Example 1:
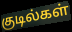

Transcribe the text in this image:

குடில்கள்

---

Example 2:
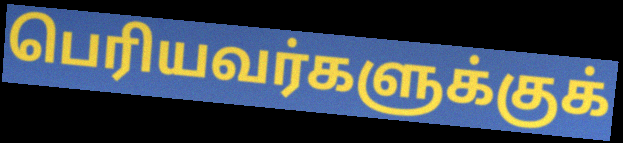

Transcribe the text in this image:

பெரியவர்களுக்குக்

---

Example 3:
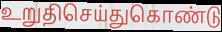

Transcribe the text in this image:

உறுதிசெய்துகொண்டு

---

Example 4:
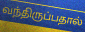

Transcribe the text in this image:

வந்திருப்பதால்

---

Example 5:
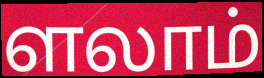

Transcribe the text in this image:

ளலாம்